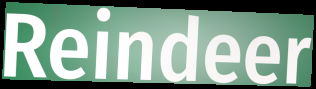
Reindeer